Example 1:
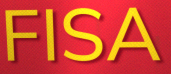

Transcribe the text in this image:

FISA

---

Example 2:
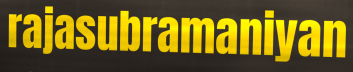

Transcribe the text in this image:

rajasubramaniyan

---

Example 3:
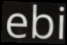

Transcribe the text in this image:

ebi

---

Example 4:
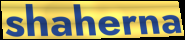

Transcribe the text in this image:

shaherna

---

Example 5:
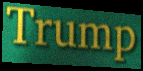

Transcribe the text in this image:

Trump